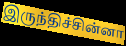
இருந்திச்சின்னா